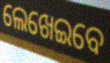
ଲେଖେଇବେ